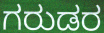
ಗರುಡರ